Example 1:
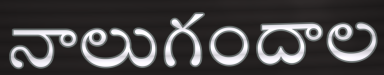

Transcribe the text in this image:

నాలుగందాల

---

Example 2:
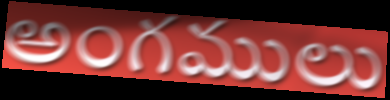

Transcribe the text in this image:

అంగములు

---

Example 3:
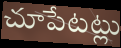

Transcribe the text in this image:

చూపేటట్లు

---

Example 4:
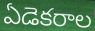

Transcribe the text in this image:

ఏడెకరాల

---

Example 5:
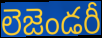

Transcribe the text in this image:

లెజెండరీ